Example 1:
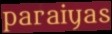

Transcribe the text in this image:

paraiyas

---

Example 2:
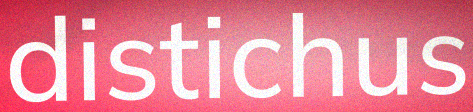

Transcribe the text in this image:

distichus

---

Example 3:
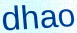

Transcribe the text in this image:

dhao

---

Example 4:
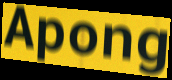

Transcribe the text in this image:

Apong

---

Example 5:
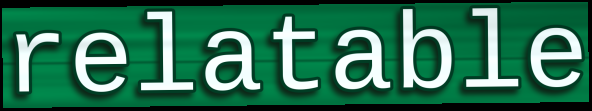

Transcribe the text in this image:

relatable